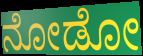
ನೋಡೋ